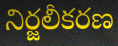
నిర్జలీకరణ